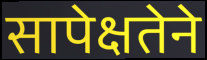
सापेक्षतेने